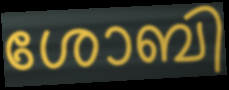
ശോബി